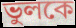
ভুলকে